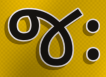
જઃ